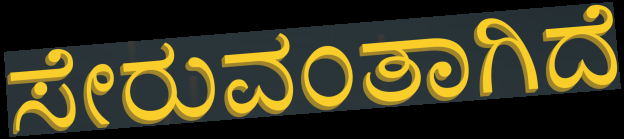
ಸೇರುವಂತಾಗಿದೆ